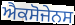
ਐਕਸੋਜੇਨਸ